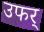
उफर्